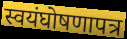
स्वयंघोषणापत्र